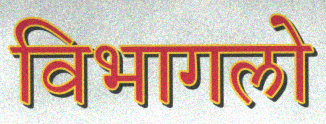
विभागलो